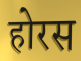
होरस